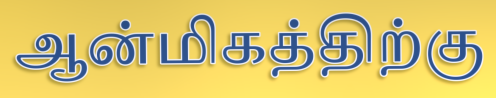
ஆன்மிகத்திற்கு